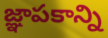
జ్ఞాపకాన్ని